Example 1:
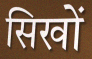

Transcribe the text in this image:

सिखों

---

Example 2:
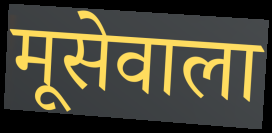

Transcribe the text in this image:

मूसेवाला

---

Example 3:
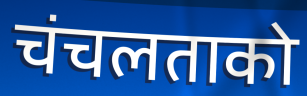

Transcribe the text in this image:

चंचलताको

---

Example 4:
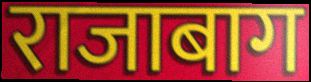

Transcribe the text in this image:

राजाबाग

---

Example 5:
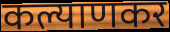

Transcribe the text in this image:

कल्याणकर